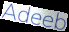
Adeeb